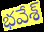
భవేశ్